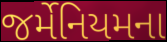
જર્મેનિયમના